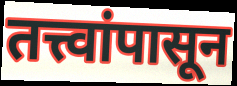
तत्त्वांपासून